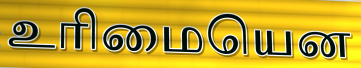
உரிமையென